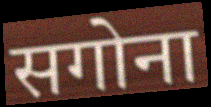
सगोना